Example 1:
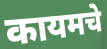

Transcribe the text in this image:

कायमचे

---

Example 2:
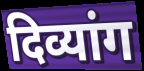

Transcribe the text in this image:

दिव्यांग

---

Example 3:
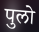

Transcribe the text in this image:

पुलो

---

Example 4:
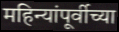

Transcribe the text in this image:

महिन्यांपूर्वीच्या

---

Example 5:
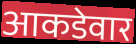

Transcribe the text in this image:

आकडेवार